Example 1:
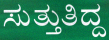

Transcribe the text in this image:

ಸುತ್ತುತಿದ್ದ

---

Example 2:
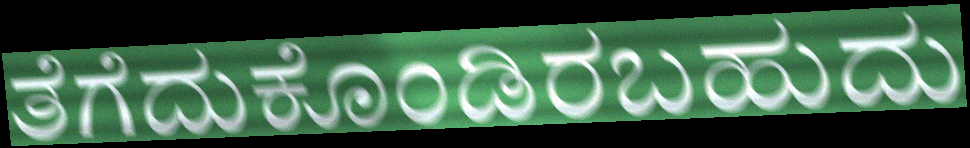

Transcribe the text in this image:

ತೆಗೆದುಕೊಂಡಿರಬಹುದು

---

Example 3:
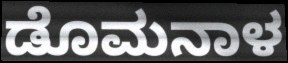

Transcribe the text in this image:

ಡೊಮನಾಳ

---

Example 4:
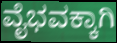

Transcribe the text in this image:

ವೈಭವಕ್ಕಾಗಿ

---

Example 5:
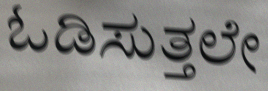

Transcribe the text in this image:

ಓಡಿಸುತ್ತಲೇ